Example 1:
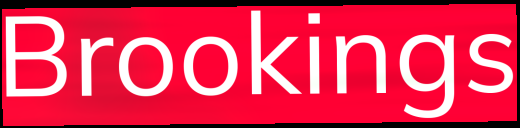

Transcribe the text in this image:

Brookings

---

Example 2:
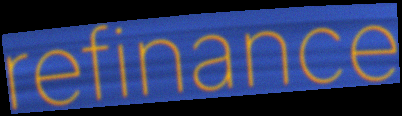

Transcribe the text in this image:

refinance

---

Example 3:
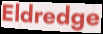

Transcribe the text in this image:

Eldredge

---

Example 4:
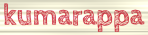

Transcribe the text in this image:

kumarappa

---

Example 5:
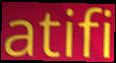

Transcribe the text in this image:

atifi